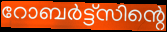
റോബർട്ട്സിന്റെ